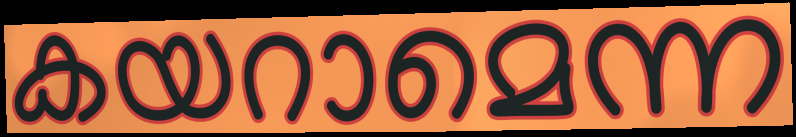
കയറാമെന്ന